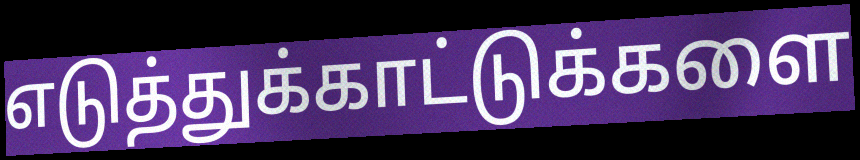
எடுத்துக்காட்டுக்களை